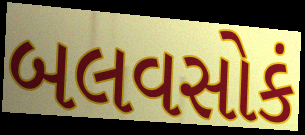
બલવસોકં